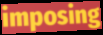
imposing